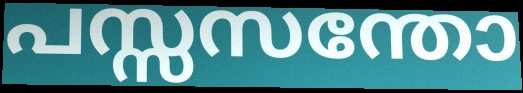
പസ്സസന്തോ